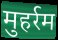
मुहर्रम